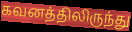
கவனத்திலிருந்து